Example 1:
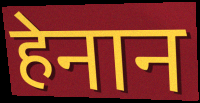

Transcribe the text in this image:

हेनान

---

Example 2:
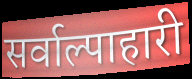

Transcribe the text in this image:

सर्वाल्पाहारी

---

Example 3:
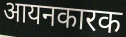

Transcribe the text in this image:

आयनकारक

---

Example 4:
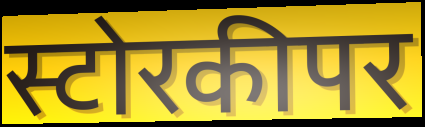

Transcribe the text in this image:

स्टोरकीपर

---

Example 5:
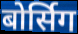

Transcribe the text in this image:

बोर्सिग